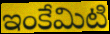
ఇంకేమిటి